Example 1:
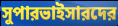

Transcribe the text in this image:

সুপারভাইসারদের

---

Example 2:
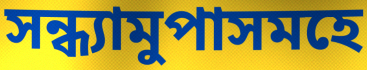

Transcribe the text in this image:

সন্ধ্যামুপাসমহে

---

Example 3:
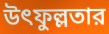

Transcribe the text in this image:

উৎফুল্লতার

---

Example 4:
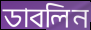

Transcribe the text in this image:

ডাবলিন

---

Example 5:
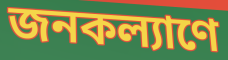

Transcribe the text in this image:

জনকল্যাণে